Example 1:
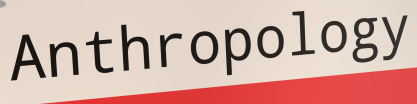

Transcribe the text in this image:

Anthropology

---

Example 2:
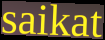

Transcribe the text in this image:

saikat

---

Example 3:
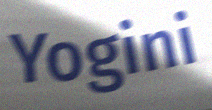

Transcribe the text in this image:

Yogini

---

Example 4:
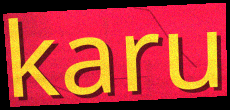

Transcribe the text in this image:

karu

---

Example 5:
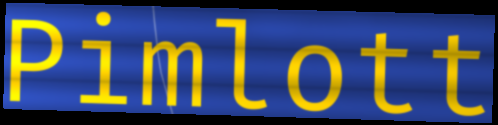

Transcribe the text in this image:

Pimlott